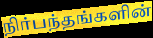
நிர்பந்தங்களின்